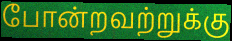
போன்றவற்றுக்கு